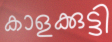
കാളക്കുട്ടി